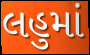
લહુમાં